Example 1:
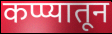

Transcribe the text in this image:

कप्प्यातून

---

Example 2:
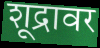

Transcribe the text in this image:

शूद्रावर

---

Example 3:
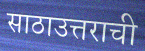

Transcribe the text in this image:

साठाउत्तराची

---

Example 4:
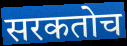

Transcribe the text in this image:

सरकतोच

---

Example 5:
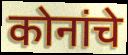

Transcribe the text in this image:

कोनांचे